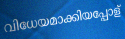
വിധേയമാക്കിയപ്പോള്